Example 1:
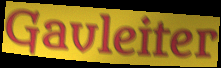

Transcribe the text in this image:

Gauleiter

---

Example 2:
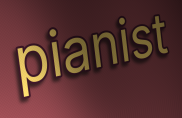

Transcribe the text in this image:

pianist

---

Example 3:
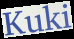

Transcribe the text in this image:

Kuki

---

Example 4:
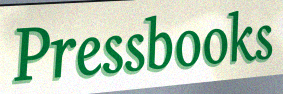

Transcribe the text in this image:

Pressbooks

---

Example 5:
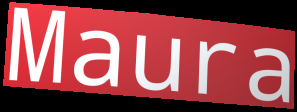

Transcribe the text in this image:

Maura